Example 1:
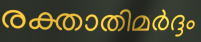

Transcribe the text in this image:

രക്താതിമർദ്ദം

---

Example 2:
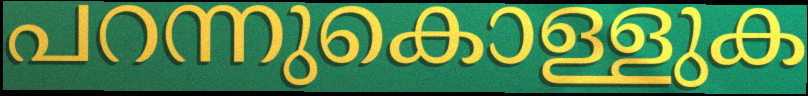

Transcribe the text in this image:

പറന്നുകൊള്ളുക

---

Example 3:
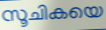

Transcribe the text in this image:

സൂചികയെ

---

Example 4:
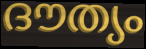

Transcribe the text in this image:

ദൗത്യം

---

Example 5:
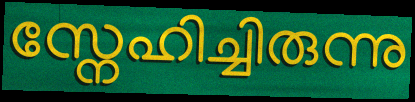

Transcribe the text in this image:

സ്നേഹിച്ചിരുന്നു